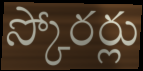
స్కోరర్లు